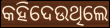
କହିଦେଉଥିଲେ